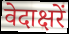
वेदाक्षरें